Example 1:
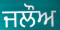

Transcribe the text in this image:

ਜਲੌਅ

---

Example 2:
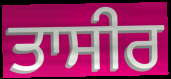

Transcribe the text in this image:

ਤਾਸੀਰ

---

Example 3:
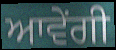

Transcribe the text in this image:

ਆਵੇਂਗੀ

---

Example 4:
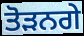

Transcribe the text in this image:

ਤੋੜਨਗੇ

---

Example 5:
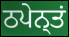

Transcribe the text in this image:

ਠਪੇਨ੍ਤਂ